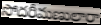
సోదరీమణులారా